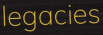
legacies